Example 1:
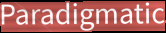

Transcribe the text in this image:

Paradigmatic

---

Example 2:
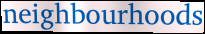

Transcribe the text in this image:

neighbourhoods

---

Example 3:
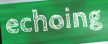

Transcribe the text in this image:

echoing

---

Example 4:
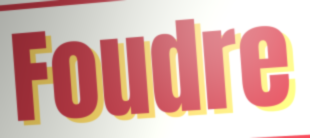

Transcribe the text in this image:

Foudre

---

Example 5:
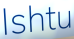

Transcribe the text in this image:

Ishtu